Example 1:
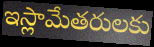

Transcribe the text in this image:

ఇస్లామేతరులకు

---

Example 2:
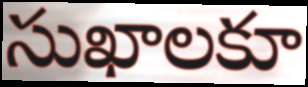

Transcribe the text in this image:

సుఖాలకూ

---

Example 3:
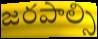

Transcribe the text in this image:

జరపాల్సి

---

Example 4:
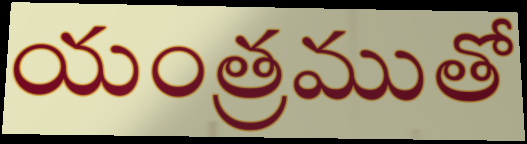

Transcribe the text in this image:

యంత్రముతో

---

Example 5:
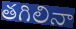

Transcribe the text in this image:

తగిలినా